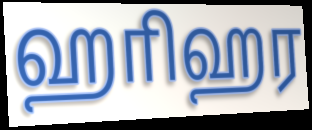
ஹரிஹர